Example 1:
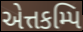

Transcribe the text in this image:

એત્તકમ્પિ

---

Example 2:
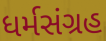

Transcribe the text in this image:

ધર્મસંગ્રહ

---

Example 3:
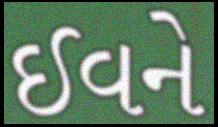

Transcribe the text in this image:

ઈવને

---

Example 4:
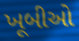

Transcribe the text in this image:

ખૂબીઓ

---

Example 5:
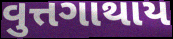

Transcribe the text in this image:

વુત્તગાથાય